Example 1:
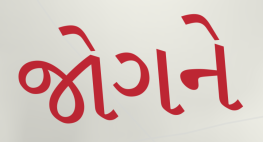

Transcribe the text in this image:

જોગને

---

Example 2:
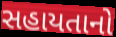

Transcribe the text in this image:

સહાયતાનો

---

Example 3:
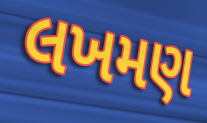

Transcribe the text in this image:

લખમણ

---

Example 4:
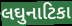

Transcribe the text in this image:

લઘુનાટિકા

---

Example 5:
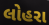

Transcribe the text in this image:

લોહરા